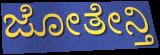
ಜೋತೇನ್ತಿ